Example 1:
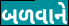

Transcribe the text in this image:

બળવાને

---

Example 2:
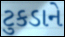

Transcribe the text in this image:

ટુકડાને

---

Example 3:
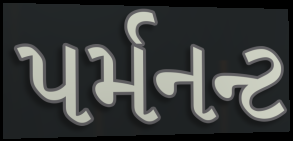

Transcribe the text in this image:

પર્મનન્ટ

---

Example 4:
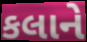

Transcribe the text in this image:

કલાને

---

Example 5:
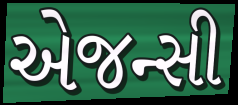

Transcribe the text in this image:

એજન્સી